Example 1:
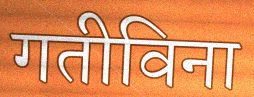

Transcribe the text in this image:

गतीविना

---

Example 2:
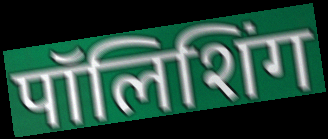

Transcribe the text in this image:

पॉलिशिंग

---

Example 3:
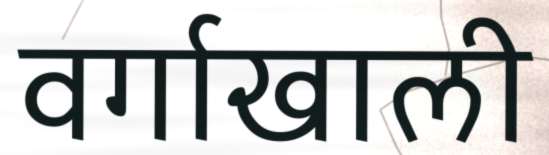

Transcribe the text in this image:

वर्गाखाली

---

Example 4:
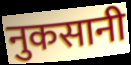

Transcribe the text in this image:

नुकसानी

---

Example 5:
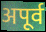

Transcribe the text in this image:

अपूर्व